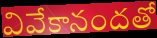
వివేకానందతో